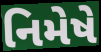
નિમેષે